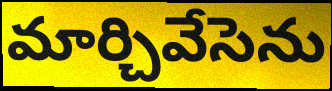
మార్చివేసెను